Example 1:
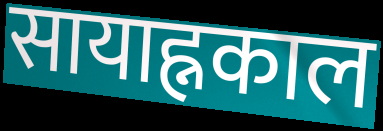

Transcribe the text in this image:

सायाह्नकाल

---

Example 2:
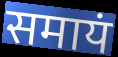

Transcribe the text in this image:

समायं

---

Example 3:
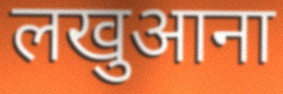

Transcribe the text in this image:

लखुआना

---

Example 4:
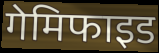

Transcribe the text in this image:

गेमिफाइड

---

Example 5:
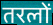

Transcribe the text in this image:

तरलों